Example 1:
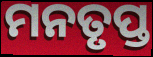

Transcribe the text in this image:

ମନତୃପ୍ତ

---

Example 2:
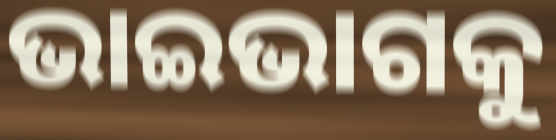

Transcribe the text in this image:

ଭାଇଭାଗକୁ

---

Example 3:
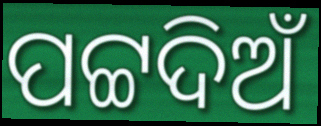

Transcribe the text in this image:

ପଟ୍ଟଦିଅଁ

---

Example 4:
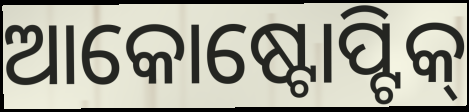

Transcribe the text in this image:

ଆକୋଷ୍ଟୋପ୍ଟିକ୍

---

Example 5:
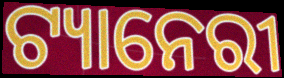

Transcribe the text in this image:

ଟ୍ୟାନେରୀ